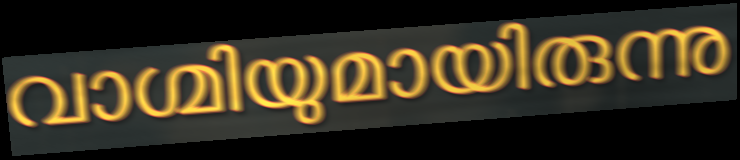
വാഗ്മിയുമായിരുന്നു